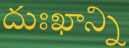
దుఃఖాన్ని